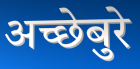
अच्छेबुरे